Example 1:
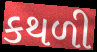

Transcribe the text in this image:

કથળી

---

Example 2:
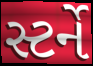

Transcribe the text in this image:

સ્ટર્ને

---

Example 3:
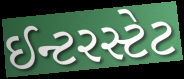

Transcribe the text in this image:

ઈન્ટરસ્ટેટ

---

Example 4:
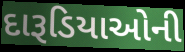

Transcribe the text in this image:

દારૂડિયાઓની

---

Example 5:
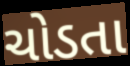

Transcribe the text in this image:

ચોડતા